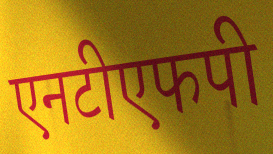
एनटीएफपी